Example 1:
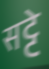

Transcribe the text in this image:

सट्टे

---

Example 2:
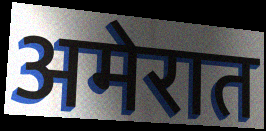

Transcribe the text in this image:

अमेरात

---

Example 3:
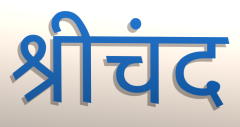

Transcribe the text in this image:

श्रीचंद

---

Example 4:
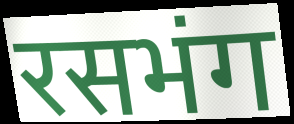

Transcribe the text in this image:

रसभंग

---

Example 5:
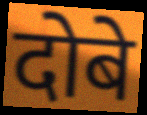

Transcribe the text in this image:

दोबे